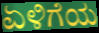
ಏಳಿಗೆಯ